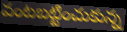
వంటబట్టించుకున్న